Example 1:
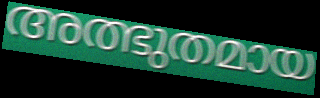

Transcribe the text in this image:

അത്ഭുതമായ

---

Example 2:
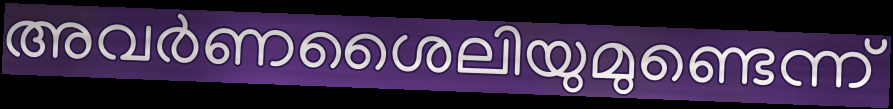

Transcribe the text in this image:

അവർണശൈലിയുമുണ്ടെന്ന്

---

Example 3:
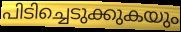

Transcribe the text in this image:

പിടിച്ചെടുക്കുകയും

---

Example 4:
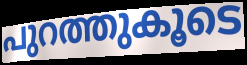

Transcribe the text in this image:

പുറത്തുകൂടെ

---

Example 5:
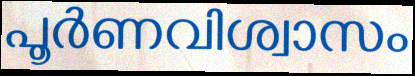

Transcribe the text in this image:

പൂർണവിശ്വാസം